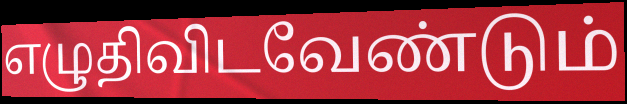
எழுதிவிடவேண்டும்